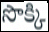
సొక్కి